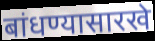
बांधण्यासारखे